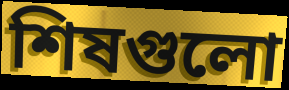
শিষগুলো